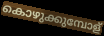
കൊഴുക്കുമ്പോള്